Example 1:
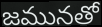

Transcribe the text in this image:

జమునతో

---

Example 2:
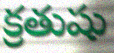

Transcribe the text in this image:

క్రతుషు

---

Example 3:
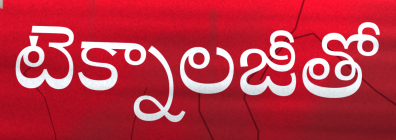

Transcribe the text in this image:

టెక్నాలజీతో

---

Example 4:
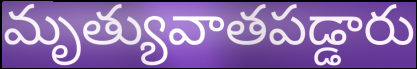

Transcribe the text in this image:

మృత్యువాతపడ్డారు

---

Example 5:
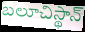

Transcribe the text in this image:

బలూచిస్థాన్